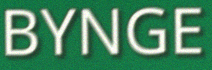
BYNGE